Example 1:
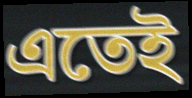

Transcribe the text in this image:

এতেই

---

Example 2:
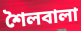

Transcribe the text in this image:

শৈলবালা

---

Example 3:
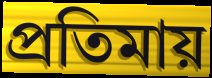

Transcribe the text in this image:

প্রতিমায়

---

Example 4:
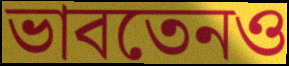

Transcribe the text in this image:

ভাবতেনও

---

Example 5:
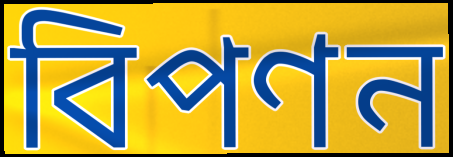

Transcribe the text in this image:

বিপণন